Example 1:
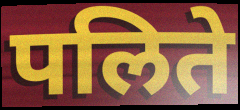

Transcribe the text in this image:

पलिते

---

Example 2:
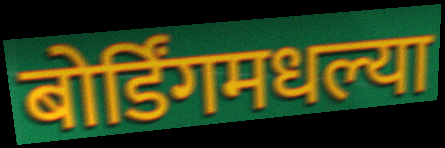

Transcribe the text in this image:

बोर्डिंगमधल्या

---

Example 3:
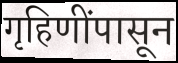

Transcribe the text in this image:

गृहिणींपासून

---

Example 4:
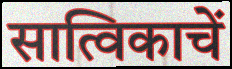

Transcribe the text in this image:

सात्विकाचें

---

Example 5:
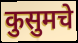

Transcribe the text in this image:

कुसुमचे